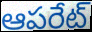
ఆపరేట్